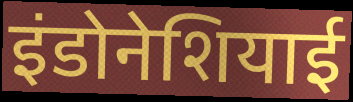
इंडोनेशियाई